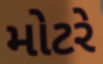
મોટરે